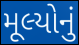
મૂલ્યોનું